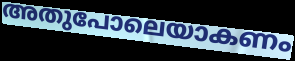
അതുപോലെയാകണം